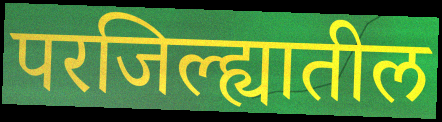
परजिल्ह्यातील